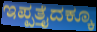
ಇಪ್ಪತ್ತೈದಕ್ಕೂ